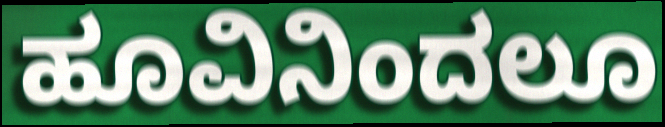
ಹೂವಿನಿಂದಲೂ